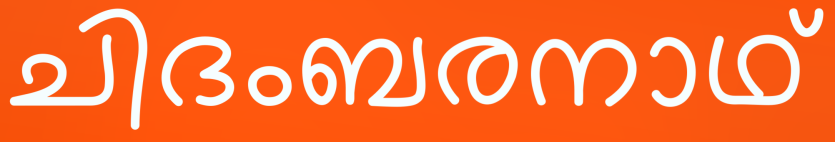
ചിദംബരനാഥ്